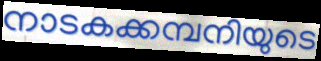
നാടകക്കമ്പനിയുടെ